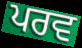
ਪਰਵ